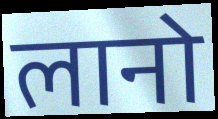
लानो